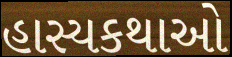
હાસ્યકથાઓ